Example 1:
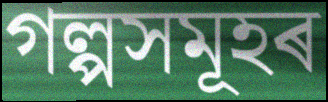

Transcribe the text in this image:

গল্পসমূহৰ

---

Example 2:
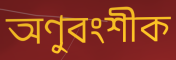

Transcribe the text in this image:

অণুবংশীক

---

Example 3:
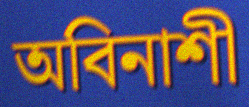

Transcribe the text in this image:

অবিনাশী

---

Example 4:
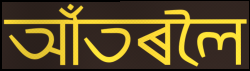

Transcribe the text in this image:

আঁতৰলৈ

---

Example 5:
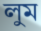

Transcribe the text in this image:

লুম